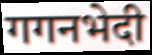
गगनभेदी